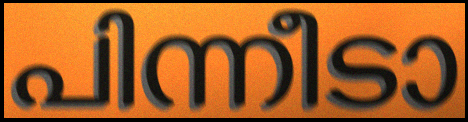
പിന്നീടാ